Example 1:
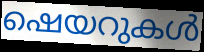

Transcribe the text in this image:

ഷെയറുകൾ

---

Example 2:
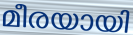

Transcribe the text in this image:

മീരയായി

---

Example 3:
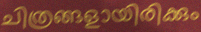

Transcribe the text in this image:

ചിത്രങ്ങളായിരിക്കും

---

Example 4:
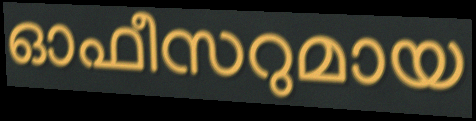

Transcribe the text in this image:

ഓഫീസറുമായ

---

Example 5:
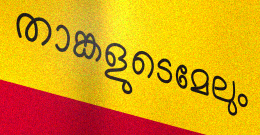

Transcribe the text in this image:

താങ്കളുടെമേലും